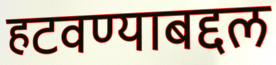
हटवण्याबद्दल